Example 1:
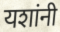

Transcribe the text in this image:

यशांनी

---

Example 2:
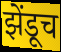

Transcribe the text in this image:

झेंडूच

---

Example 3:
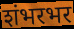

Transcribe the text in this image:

शंभरभर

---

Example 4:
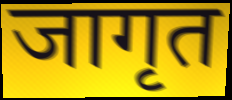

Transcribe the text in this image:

जागृत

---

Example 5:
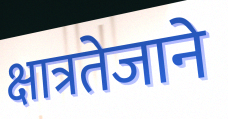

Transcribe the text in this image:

क्षात्रतेजाने